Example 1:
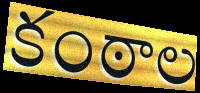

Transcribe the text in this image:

కంఠాల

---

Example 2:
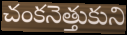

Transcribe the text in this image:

చంకనెత్తుకుని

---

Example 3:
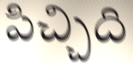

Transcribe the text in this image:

పిచ్చిది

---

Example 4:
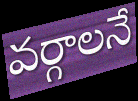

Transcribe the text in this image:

వర్గాలనే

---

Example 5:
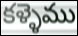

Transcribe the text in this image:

కళ్ళెము